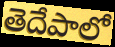
తెదేపాలో